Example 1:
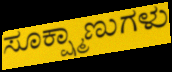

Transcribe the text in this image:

ಸೂಕ್ಷ್ಮಾಣುಗಳು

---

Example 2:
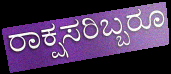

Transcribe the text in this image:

ರಾಕ್ಷಸರಿಬ್ಬರೂ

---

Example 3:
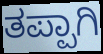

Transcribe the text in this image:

ತಪ್ಪಾಗಿ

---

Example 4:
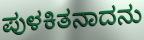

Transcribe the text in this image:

ಪುಳಕಿತನಾದನು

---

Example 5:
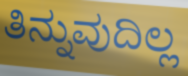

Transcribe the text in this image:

ತಿನ್ನುವುದಿಲ್ಲ